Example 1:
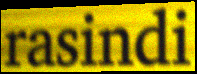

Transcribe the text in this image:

rasindi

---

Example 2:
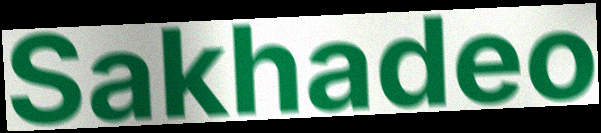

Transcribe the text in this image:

Sakhadeo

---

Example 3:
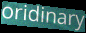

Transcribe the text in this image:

oridinary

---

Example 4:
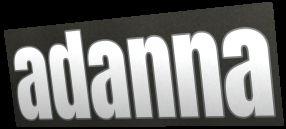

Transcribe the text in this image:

adanna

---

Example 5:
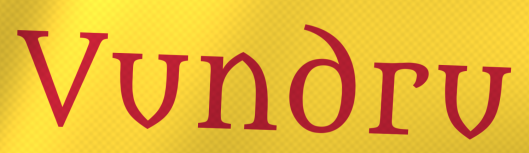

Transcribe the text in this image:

Vundru